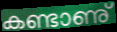
കണ്ടാണു്